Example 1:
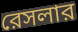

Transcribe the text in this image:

রেসলার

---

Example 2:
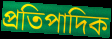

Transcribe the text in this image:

প্রতিপাদিক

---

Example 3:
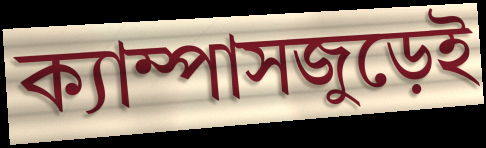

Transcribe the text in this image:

ক্যাম্পাসজুড়েই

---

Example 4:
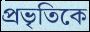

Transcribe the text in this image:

প্রভৃতিকে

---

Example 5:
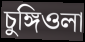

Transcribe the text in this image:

চুঙ্গিওলা